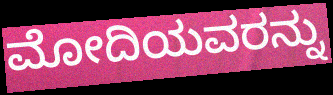
ಮೋದಿಯವರನ್ನು